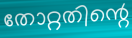
തോറ്റതിന്റെ